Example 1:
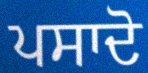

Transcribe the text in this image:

ਪਸਾਦੋ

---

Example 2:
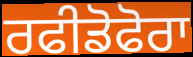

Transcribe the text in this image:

ਰਫੀਡੋਫੋਰਾ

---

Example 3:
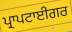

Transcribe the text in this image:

ਪ੍ਰਾਪਟਾਈਗਰ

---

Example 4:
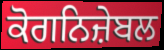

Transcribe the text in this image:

ਕੋਗਨਿਜ਼ੇਬਲ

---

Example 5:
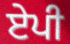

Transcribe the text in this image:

ਏਪੀ